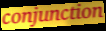
conjunction